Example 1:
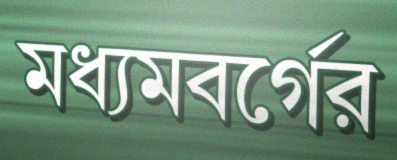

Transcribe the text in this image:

মধ্যমবর্গের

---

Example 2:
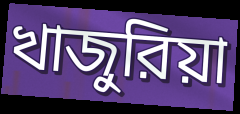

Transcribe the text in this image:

খাজুরিয়া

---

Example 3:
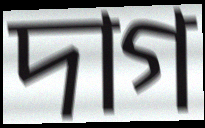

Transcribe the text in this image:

দাগ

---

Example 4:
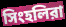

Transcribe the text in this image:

সিংহলিরা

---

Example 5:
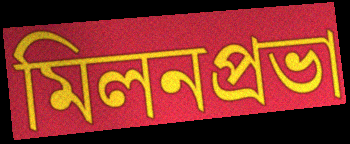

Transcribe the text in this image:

মিলনপ্রভা